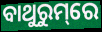
ବାଥୁରୁମ୍‌ରେ